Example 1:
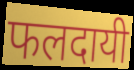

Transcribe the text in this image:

फलदायी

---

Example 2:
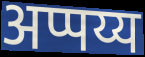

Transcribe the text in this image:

अप्पय्य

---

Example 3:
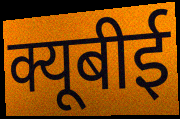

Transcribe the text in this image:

क्यूबीई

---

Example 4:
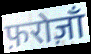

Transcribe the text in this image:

फ़रोज़ाँ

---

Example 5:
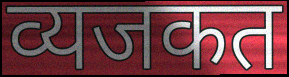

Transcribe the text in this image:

व्यजकत